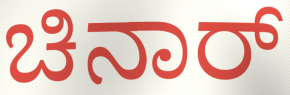
ಚಿನಾರ್